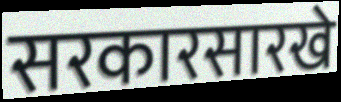
सरकारसारखे